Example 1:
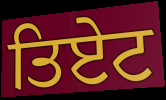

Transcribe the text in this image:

ਤਿਏਟ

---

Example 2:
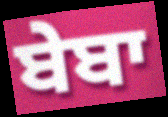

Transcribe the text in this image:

ਬੇਬਾ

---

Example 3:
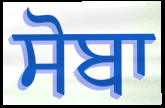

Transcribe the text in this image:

ਸੋਬਾ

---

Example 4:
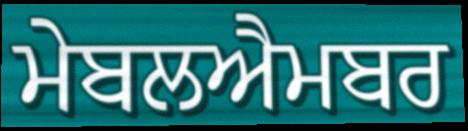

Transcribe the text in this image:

ਮੇਬਲਐਮਬਰ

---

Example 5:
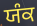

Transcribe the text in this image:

ਯੰਕ